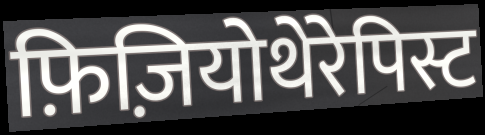
फ़िज़ियोथेरेपिस्ट